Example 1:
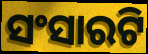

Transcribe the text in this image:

ସଂସାରଟି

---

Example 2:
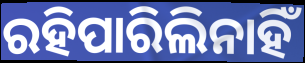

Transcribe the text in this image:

ରହିପାରିଲିନାହିଁ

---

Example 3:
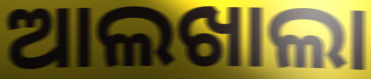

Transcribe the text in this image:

ଆଲଖାଲା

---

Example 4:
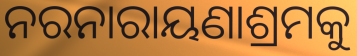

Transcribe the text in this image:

ନରନାରାୟଣାଶ୍ରମକୁ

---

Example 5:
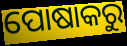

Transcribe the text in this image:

ପୋଷାକରୁ